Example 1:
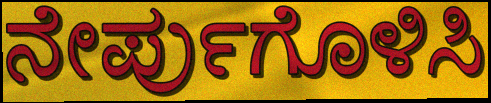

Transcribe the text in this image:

ನೇರ್ಪುಗೊಳಿಸಿ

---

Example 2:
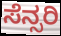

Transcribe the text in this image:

ಸೆನ್ಸರಿ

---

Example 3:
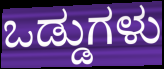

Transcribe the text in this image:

ಒಡ್ಡುಗಳು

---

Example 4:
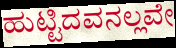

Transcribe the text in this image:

ಹುಟ್ಟಿದವನಲ್ಲವೇ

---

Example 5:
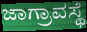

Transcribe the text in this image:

ಜಾಗ್ರಾವಸ್ಥೆ